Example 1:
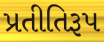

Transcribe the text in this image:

પ્રતીતિરૂપ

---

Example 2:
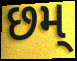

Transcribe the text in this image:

છમ્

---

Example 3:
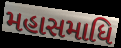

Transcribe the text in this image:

મહાસમાધિ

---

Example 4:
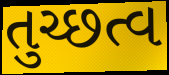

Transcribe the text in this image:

તુચ્છત્વ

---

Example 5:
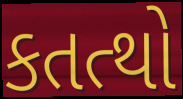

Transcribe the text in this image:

કતત્થો